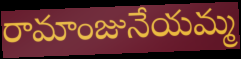
రామాంజునేయమ్మ